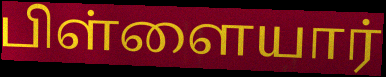
பிள்ளையார்